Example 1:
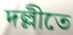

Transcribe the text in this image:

দল্লীতে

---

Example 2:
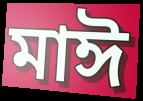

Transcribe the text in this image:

মাঈ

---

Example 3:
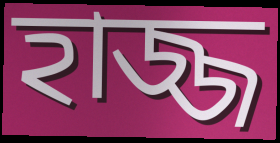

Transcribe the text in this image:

হাজ্জ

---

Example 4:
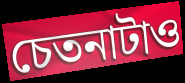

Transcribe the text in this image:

চেতনাটাও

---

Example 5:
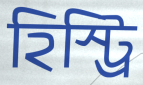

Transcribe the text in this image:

হিস্ট্রি